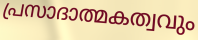
പ്രസാദാത്മകത്വവും